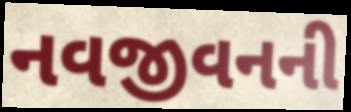
નવજીવનની